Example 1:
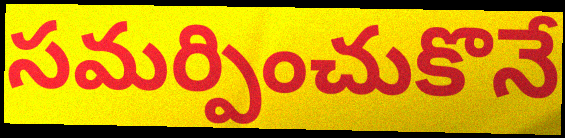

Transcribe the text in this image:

సమర్పించుకొనే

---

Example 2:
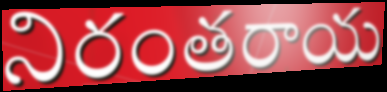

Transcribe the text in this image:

నిరంతరాయ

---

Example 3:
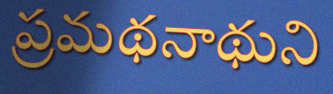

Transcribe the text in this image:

ప్రమథనాథుని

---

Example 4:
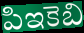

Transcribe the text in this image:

పిఇకెబి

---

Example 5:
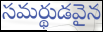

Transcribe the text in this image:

సమర్థుడవైన